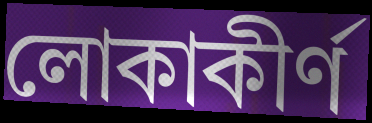
লোকাকীর্ণ